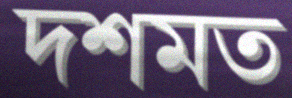
দশমত